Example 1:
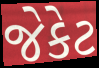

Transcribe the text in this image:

જેકેટ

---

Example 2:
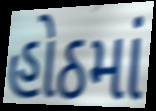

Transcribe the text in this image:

હોઠમાં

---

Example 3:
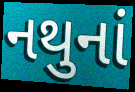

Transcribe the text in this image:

નથુનાં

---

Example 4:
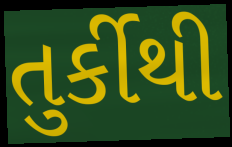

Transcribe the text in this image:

તુર્કીથી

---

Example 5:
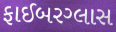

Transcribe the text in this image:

ફાઈબરગ્લાસ